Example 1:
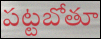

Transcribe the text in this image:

పట్టబోతూ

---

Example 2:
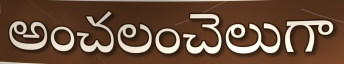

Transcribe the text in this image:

అంచలంచెలుగా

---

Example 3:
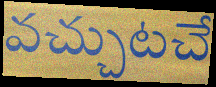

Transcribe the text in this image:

వచ్చుటచే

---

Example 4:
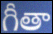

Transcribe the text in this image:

గీతా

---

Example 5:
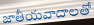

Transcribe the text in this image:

జాతీయవాదాలతో